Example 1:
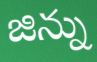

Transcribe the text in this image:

జిన్ను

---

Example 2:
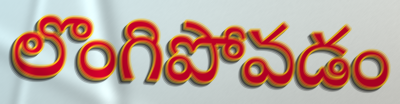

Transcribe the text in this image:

లొంగిపోవడం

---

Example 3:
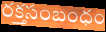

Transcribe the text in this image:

రక్తసంబంధం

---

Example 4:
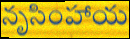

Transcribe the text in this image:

నృసింహాయ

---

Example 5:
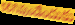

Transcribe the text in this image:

కలిగివుండేందుకు